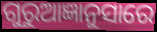
ଗୁରୁଆଜ୍ଞାନୁସାରେ